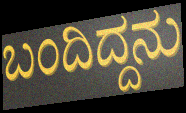
ಬಂದಿದ್ದನು